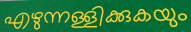
എഴുന്നള്ളിക്കുകയും